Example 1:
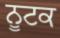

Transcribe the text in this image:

ਨੂਟਕ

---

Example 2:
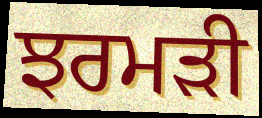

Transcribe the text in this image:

ਝਰਮੜੀ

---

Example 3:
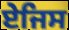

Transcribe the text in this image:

ਏਜਿਸ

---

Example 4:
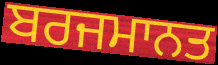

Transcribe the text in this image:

ਬਰਜਮਾਨਤ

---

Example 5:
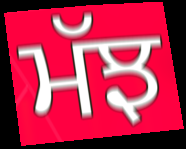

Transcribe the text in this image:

ਮੱਝ